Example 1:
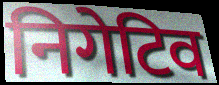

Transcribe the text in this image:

निगेटिव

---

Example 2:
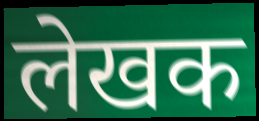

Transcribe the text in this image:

लेखक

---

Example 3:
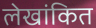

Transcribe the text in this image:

लेखांकित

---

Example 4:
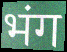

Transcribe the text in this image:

भंग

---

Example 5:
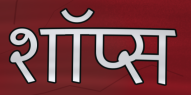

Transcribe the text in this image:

शॉप्स